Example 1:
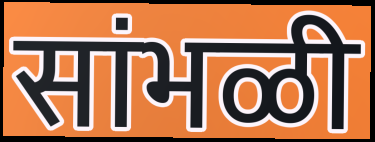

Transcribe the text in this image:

सांभळी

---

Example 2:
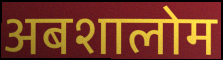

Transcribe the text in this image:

अबशालोम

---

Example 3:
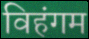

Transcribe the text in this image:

विहंगम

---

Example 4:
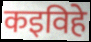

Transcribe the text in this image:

कइविहे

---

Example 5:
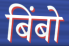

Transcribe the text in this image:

बिंबो